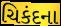
ચિકંદના